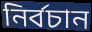
নির্বচান